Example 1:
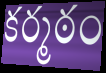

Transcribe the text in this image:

కర్మఠం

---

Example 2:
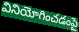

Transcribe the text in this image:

వినియోగించడంపై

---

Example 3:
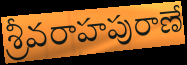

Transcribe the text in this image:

శ్రీవరాహపురాణే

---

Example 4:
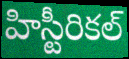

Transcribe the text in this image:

హిస్టీరికల్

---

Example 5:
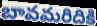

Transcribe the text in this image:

బావమరిదికి